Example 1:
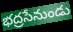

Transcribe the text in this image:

భద్రసేనుండు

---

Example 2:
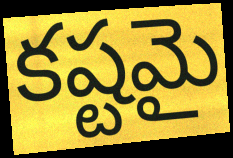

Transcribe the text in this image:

కష్టమై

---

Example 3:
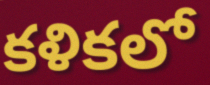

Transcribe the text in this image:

కళికలో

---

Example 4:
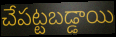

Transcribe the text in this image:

చేపట్టబడ్డాయి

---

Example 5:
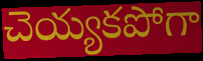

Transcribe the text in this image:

చెయ్యకపోగా